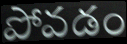
పోవడం